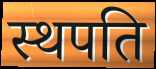
स्थपति